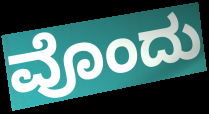
ವೊಂದು